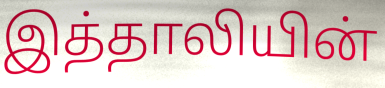
இத்தாலியின்